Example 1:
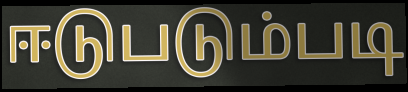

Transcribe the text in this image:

ஈடுபடும்படி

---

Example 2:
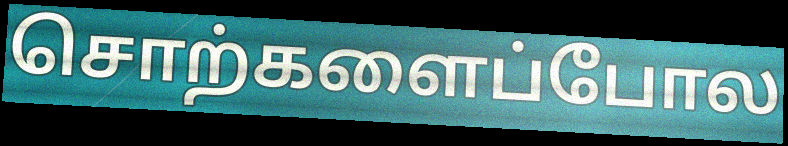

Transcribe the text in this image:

சொற்களைப்போல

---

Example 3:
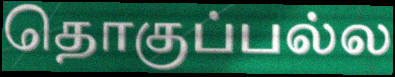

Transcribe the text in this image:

தொகுப்பல்ல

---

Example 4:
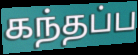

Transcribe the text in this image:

கந்தப்ப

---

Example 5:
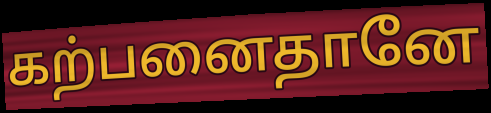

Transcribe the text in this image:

கற்பனைதானே